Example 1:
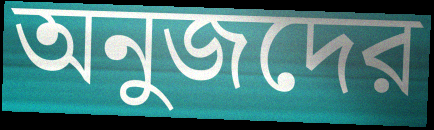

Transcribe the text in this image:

অনুজদের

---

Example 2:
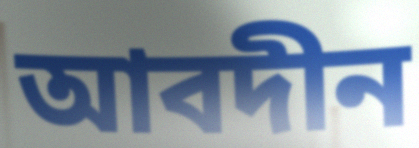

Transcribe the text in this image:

আবদীন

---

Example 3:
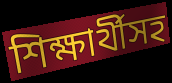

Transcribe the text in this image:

শিক্ষার্থীসহ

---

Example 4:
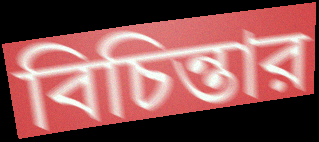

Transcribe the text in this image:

বিচিন্তার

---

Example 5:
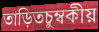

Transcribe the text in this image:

তাড়িতচুম্বকীয়